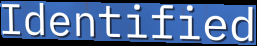
Identified